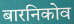
बारनिकोव